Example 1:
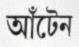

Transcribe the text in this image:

আঁটেন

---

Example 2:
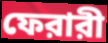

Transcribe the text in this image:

ফেরারী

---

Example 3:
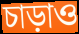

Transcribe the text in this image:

চাড়াও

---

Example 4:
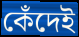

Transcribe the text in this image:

কেঁদেই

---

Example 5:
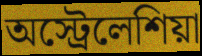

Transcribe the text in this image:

অস্ট্রেলেশিয়া